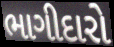
ભાગીદારો